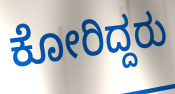
ಕೋರಿದ್ದರು